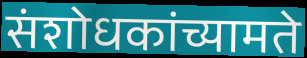
संशोधकांच्यामते